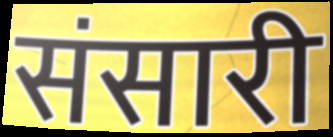
संसारी